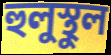
হুলুস্থুল